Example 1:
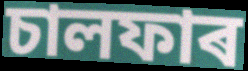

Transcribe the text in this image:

চালফাৰ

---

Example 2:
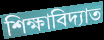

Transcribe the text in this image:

শিক্ষাবিদ্যাত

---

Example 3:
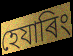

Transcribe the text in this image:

হেযাৰিং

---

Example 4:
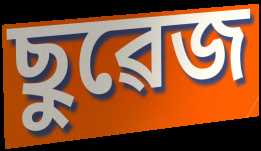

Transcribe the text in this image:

ছুৱেজ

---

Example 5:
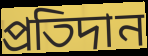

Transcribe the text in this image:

প্ৰতিদান